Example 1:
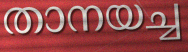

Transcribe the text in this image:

താനയച്ച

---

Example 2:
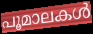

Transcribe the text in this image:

പൂമാലകൾ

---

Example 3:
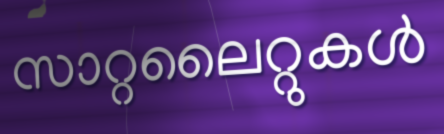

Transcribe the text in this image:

സാറ്റലൈറ്റുകൾ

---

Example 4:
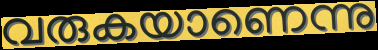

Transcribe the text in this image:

വരുകയാണെന്നു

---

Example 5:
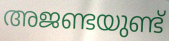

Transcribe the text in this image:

അജണ്ടയുണ്ട്